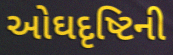
ઓઘદૃષ્ટિની